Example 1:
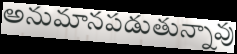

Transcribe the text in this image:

అనుమానపడుతున్నావు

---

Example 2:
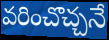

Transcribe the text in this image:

వరించొచ్చనే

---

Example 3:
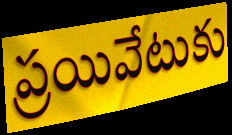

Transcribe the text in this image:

ప్రయివేటుకు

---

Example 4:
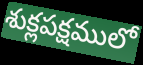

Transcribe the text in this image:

శుక్లపక్షములో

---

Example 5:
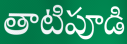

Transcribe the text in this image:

తాటిపూడి